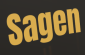
Sagen